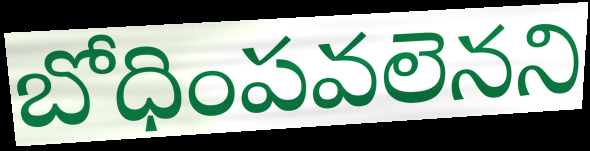
బోధింపవలెనని